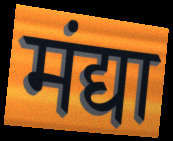
मंद्या